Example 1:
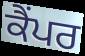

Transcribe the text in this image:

ਕੈਂਪਰ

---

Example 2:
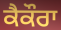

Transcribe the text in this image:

ਕੈਕੌਰਾ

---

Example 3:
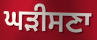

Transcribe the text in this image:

ਘੜੀਸਣਾ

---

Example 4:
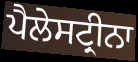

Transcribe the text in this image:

ਪੈਲੇਸਟ੍ਰੀਨਾ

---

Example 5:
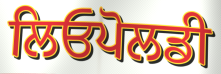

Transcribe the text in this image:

ਲਿਓਪੋਲਡੀ